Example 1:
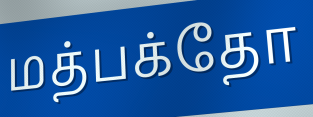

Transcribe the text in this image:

மத்பக்தோ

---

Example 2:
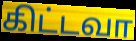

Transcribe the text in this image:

கிட்டவா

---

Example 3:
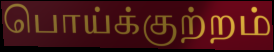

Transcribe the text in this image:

பொய்க்குற்றம்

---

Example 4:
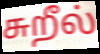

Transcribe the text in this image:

சுறீல்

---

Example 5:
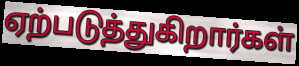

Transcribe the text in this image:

ஏற்படுத்துகிறார்கள்